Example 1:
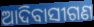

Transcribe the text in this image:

ଆଦିବାସୀଗଣ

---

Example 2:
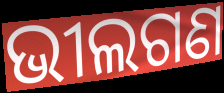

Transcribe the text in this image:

ଭୀଲଗଣ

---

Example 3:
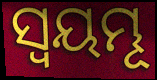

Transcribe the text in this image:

ସ୍ଵୟମ୍ଭୂ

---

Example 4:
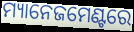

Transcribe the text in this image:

ମ୍ୟାନେଜମେଣ୍ଟରେ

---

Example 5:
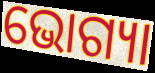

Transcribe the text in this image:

ଭୋଗ୍ୟା